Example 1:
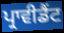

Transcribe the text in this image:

ਪ੍ਰਾਵੀਡੈਂਟ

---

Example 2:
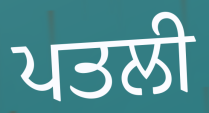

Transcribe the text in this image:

ਪਤਲੀ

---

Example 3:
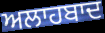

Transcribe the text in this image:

ਅਲਾਹਬਾਦ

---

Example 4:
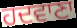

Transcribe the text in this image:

ਹਦਵਾਣਾ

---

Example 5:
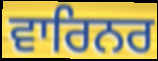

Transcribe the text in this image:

ਵਾਰਿਨਰ